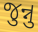
જુન્નુ